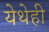
येथेही